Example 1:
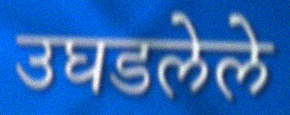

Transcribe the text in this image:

उघडलेले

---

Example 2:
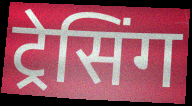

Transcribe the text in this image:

ट्रेसिंग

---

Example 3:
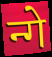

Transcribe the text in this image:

न्गे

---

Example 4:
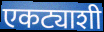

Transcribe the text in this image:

एकट्याशी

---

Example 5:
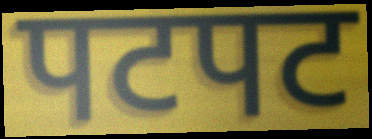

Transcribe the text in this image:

पटपट